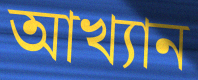
আখ্যান